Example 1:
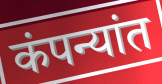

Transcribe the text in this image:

कंपन्यांत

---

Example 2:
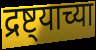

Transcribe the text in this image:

द्रष्ट्याच्या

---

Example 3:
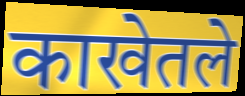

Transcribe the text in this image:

काखेतले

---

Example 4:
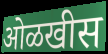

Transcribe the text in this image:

ओळखीस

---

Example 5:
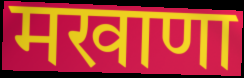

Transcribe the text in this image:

मखाणा